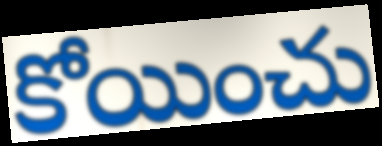
కోయించు